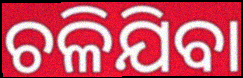
ଚଳିଯିବା